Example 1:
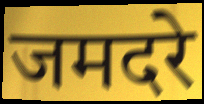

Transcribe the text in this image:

जमदरे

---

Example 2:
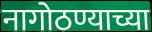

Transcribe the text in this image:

नागोठण्याच्या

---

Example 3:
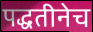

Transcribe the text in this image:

पद्धतीनेच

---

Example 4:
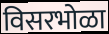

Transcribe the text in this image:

विसरभोळा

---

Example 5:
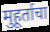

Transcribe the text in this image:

मुहूर्ताचा